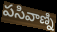
పసివాణ్ని